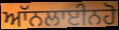
ਆੱਨਲਾਈਨਹੋ